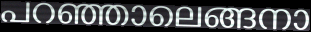
പറഞ്ഞാലെങ്ങനാ